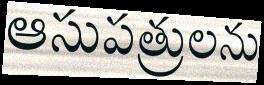
ఆసుపత్రులను